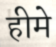
हीमे